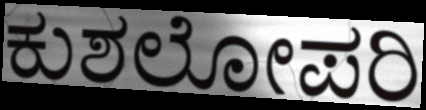
ಕುಶಲೋಪರಿ